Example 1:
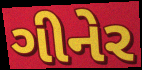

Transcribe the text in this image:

ગીનેર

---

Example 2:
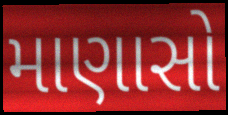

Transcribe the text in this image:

માણાસો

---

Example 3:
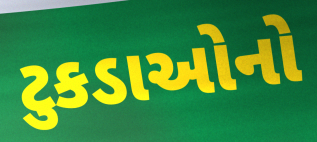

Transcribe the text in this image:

ટુકડાઓનો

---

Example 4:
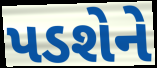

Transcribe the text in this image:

પડશેને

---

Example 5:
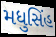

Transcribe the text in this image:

મધુસિંહ